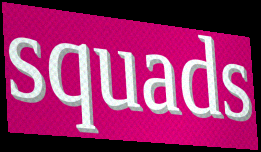
squads